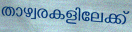
താഴ്വരകളിലേക്ക്